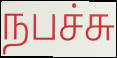
நபச்சு